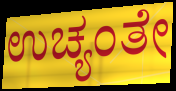
ಉಚ್ಯಂತೇ